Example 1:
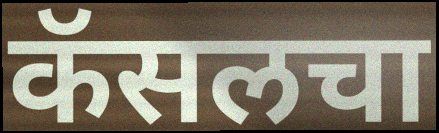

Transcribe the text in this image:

कॅसलचा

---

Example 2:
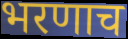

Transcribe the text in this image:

भरणाच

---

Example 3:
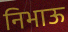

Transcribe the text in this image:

निभाऊ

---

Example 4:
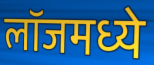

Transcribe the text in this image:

लॉजमध्ये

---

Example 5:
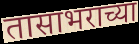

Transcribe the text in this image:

तासाभराच्या